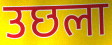
उछला